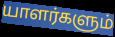
யாளர்களும்